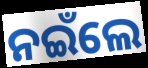
ନଇଁଲେ